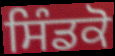
ਸਿੰਡਕੋ